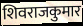
शिवराजकुमार